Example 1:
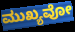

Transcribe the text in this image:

ಮುಖ್ಯವೋ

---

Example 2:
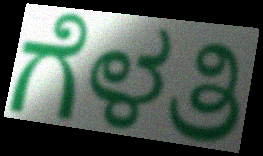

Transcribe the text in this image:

ಗೆಳತಿ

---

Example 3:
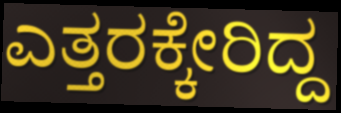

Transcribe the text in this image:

ಎತ್ತರಕ್ಕೇರಿದ್ದ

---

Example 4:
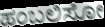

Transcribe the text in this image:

ಹಂಬಲಿಸೋ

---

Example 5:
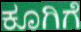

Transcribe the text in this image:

ಕೂಗಿಗೆ